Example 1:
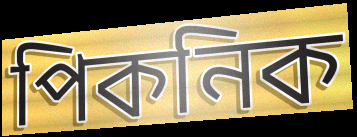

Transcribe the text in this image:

পিকনিক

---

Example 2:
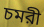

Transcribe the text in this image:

চমরী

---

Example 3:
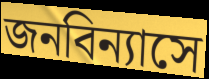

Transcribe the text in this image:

জনবিন্যাসে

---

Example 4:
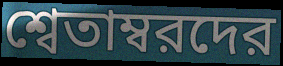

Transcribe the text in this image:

শ্বেতাম্বরদের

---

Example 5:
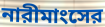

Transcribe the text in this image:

নারীমাংসের